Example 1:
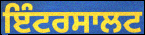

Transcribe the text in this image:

ਇੰਟਰਸਾਲਟ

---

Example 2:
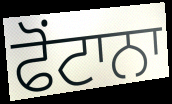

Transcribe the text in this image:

ਫੋਂਟਾਨਾ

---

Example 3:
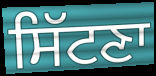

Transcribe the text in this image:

ਸਿੱਟਣਾ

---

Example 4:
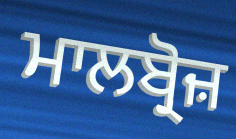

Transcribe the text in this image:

ਮਾਲਬ੍ਰੋਜ਼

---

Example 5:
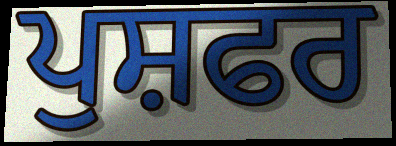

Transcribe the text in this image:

ਪੁਸ਼ਫਰ